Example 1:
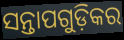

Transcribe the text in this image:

ସନ୍ତାପଗୁଡ଼ିକର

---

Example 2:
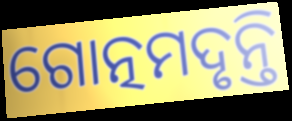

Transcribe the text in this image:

ଗୋତ୍ନମଦୃନ୍ତି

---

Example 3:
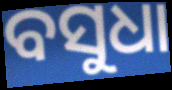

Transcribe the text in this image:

ବସୁଧା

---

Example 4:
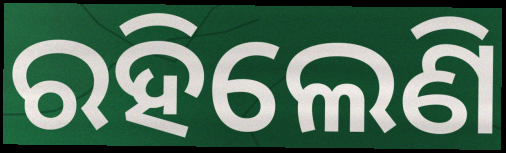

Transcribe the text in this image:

ରହିଲେଣି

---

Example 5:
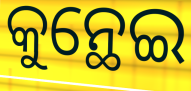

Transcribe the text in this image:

କୁନ୍ଥେଇ